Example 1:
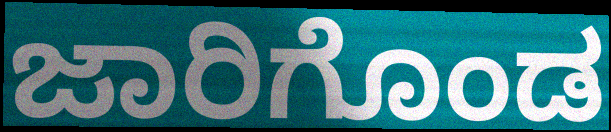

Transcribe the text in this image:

ಜಾರಿಗೊಂಡ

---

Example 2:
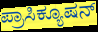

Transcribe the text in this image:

ಪ್ರಾಸಿಕ್ಯೂಷನ್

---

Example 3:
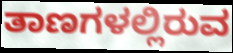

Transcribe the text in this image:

ತಾಣಗಳಲ್ಲಿರುವ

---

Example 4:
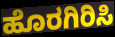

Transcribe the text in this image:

ಹೊರಗಿರಿಸಿ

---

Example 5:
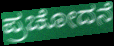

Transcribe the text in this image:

ಪ್ರಚೋದನೆ